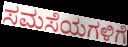
ಸಮಸೆಯಗಳಿಗೆ